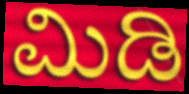
ಮಿಡಿ